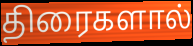
திரைகளால்